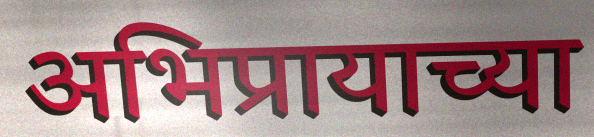
अभिप्रायाच्या